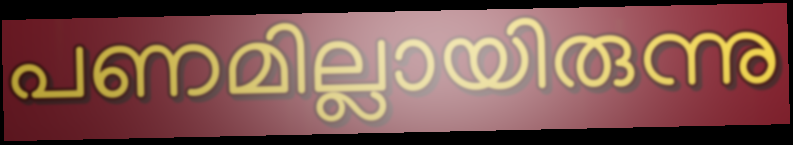
പണമില്ലായിരുന്നു